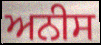
ਅਨੀਸ